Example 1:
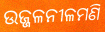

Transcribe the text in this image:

ଉଜ୍ଜଳନୀଳମଣି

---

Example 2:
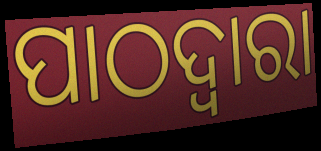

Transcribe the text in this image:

ପାଠଦ୍ଵାରା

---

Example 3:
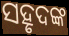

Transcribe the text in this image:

ସହୃଦଙ୍କ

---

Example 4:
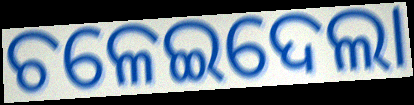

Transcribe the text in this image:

ଚଳେଇଦେଲା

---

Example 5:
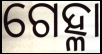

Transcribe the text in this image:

ଗେହ୍ଳା